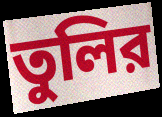
তুলির